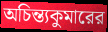
অচিন্ত্যকুমারের